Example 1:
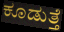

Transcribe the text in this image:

ಕೂಡುತ್ತೆ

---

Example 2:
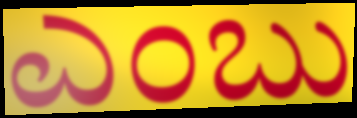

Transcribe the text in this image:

ಎಂಬು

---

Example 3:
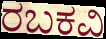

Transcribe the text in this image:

ರಬಕವಿ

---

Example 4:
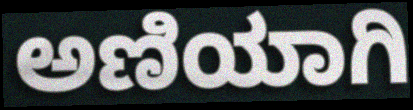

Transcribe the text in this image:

ಅಣಿಯಾಗಿ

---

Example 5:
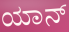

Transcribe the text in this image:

ಯಾನ್